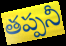
తప్పనీ